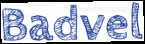
Badvel